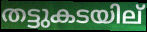
തട്ടുകടയില്